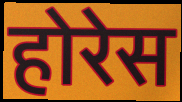
होरेस